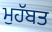
ਮੁਹੱਬਤ